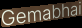
Gemabhai